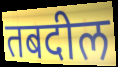
तबदील